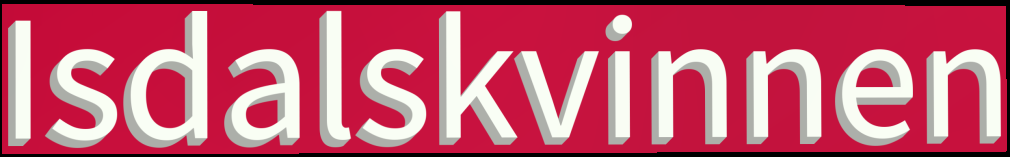
Isdalskvinnen